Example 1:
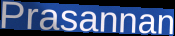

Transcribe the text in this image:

Prasannan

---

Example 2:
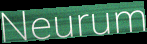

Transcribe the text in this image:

Neurum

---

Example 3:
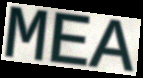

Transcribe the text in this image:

MEA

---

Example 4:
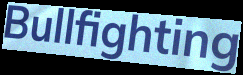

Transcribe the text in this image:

Bullfighting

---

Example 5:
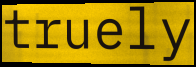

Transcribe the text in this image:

truely